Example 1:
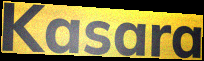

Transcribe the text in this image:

Kasara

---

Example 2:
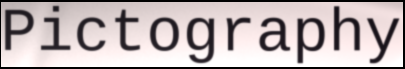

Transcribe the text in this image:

Pictography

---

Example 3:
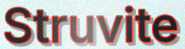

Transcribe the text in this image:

Struvite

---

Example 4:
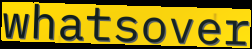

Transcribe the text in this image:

whatsover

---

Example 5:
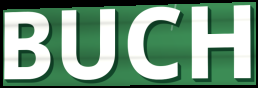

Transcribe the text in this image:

BUCH